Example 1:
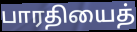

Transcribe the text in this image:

பாரதியைத்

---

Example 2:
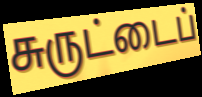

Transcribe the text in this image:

சுருட்டைப்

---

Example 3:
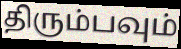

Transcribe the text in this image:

திரும்பவும்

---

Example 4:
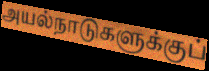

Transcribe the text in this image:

அயல்நாடுகளுக்குப்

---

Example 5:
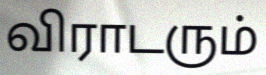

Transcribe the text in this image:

விராடரும்